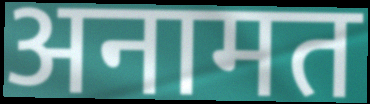
अनामत